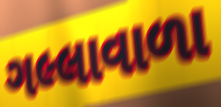
ગલ્લાવાળા